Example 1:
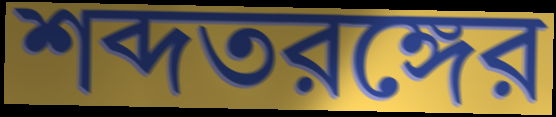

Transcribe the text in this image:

শব্দতরঙ্গের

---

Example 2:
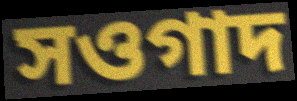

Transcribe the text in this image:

সওগাদ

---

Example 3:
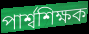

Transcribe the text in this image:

পার্শ্বশিক্ষক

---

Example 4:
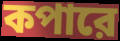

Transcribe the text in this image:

কপারে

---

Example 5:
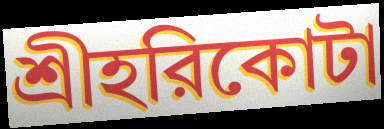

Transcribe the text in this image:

শ্রীহরিকোটা